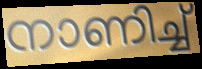
നാണിച്ച്